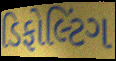
ડિફોલ્ટિંગ